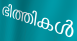
ഭിത്തികൾ